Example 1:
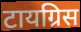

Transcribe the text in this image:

टायग्रिस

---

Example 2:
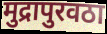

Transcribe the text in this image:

मुद्रापुरवठा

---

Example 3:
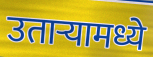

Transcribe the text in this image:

उतार्‍यामध्ये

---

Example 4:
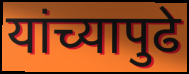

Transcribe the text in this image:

यांच्यापुढे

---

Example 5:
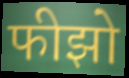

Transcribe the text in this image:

फीझो